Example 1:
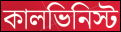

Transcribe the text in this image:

কালভিনিস্ট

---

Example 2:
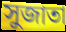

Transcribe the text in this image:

সুজাতা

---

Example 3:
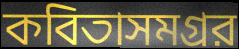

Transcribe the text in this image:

কবিতাসমগ্রর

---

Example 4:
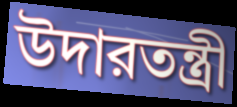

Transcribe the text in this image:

উদারতন্ত্রী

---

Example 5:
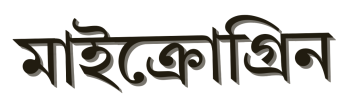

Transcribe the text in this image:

মাইক্রোগ্রিন